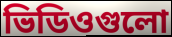
ভিডিওগুলো